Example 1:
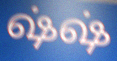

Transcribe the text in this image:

ஷ்ஷ்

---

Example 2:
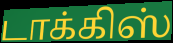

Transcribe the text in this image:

டாக்கிஸ்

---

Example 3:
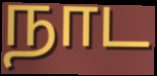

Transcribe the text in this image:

நாட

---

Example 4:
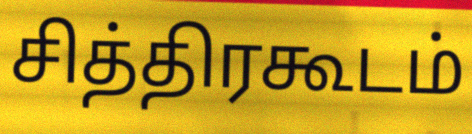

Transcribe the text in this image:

சித்திரகூடம்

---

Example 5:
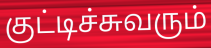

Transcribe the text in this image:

குட்டிச்சுவரும்